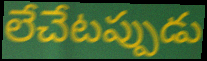
లేచేటప్పుడు